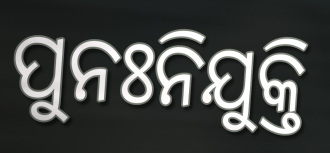
ପୁନଃନିଯୁକ୍ତି